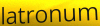
latronum